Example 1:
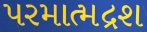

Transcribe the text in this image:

પરમાત્મદ્રશ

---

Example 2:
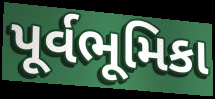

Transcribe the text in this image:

પૂર્વભૂમિકા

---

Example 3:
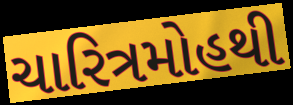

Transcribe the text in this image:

ચારિત્રમોહથી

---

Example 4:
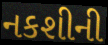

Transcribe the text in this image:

નકશીની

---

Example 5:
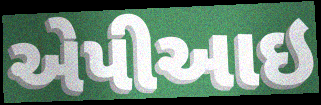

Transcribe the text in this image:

એપીઆઇ